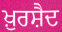
ਖ਼ੁਰਸ਼ੈਦ